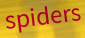
spiders